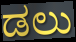
ಡಲು